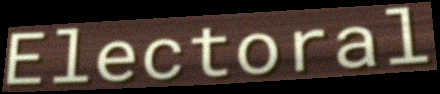
Electoral